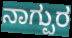
ನಾಗ್ಪುರ